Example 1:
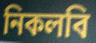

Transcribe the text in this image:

নিকলবি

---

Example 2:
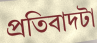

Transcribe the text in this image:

প্রতিবাদটা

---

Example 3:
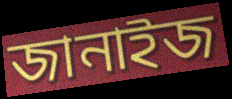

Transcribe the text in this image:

জানাইজ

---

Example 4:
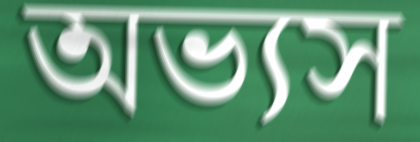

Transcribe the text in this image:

অভ্যস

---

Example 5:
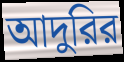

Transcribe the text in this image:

আদুরির